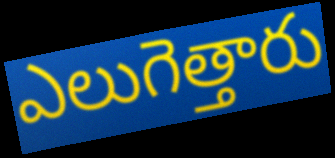
ఎలుగెత్తారు